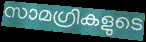
സാമഗ്രികളുടെ